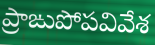
ప్రాఙుపోపవివేశ